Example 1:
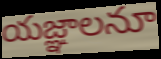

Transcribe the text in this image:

యజ్ఞాలనూ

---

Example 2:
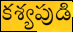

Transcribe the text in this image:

కశ్యపుడి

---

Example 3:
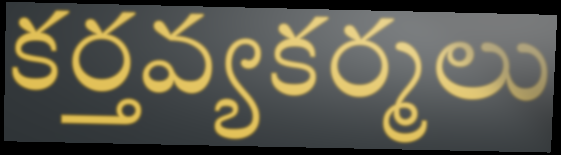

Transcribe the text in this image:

కర్తవ్యకర్మలు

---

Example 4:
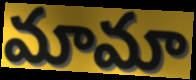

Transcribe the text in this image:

మామా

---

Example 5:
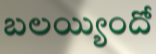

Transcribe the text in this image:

బలయ్యిందో